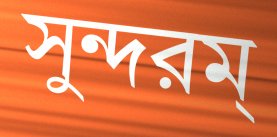
সুন্দরম্